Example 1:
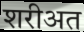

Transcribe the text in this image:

शरीअत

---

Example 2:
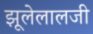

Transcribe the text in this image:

झूलेलालजी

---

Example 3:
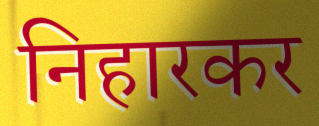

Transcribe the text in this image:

निहारकर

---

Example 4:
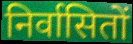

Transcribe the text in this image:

निर्वासितों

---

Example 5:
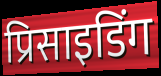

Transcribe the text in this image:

प्रिसाइडिंग